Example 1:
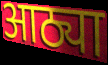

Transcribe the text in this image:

आठ्या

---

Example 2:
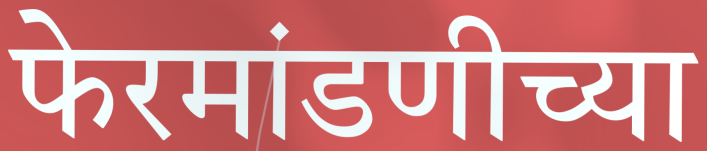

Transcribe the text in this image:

फेरमांडणीच्या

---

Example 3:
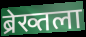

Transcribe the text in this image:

ब्रेख्तला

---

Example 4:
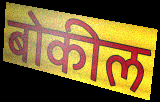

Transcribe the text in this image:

बोकील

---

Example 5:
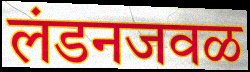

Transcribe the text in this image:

लंडनजवळ